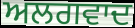
ਅਲਗਵਾਦ